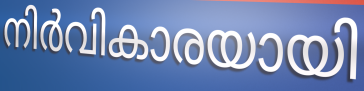
നിർവികാരയായി